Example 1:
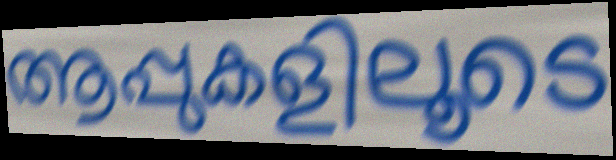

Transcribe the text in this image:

ആപ്പുകളിലൂടെ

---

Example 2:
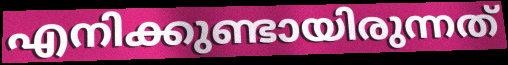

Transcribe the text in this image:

എനിക്കുണ്ടായിരുന്നത്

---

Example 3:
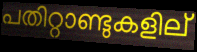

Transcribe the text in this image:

പതിറ്റാണ്ടുകളില്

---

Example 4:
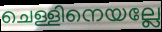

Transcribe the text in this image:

ചെള്ളിനെയല്ലേ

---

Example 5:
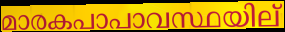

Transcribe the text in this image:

മാരകപാപാവസ്ഥയില്